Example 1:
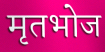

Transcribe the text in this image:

मृतभोज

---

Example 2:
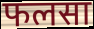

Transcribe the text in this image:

फलसा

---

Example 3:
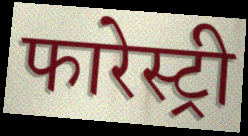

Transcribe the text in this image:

फारेस्ट्री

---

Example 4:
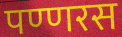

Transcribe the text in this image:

पण्णरस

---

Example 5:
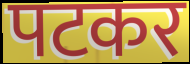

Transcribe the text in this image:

पटकर